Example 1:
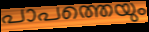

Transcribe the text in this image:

പാപത്തെയും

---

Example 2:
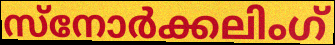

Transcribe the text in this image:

സ്നോർക്കലിംഗ്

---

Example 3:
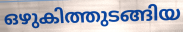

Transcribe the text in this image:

ഒഴുകിത്തുടങ്ങിയ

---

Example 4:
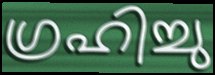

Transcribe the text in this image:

ഗ്രഹിച്ചു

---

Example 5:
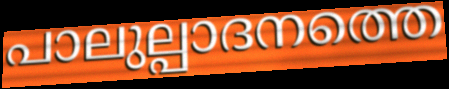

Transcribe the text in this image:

പാലുല്പാദനത്തെ